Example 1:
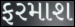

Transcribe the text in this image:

ફરમાશ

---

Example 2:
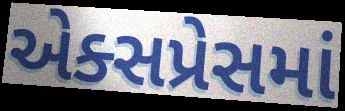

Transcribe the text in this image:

એક્સપ્રેસમાં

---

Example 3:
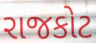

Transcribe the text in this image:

રાજકોટ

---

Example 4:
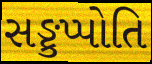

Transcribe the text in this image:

સઙ્કપ્પોતિ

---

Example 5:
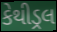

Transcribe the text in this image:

કેથીડ્રલ